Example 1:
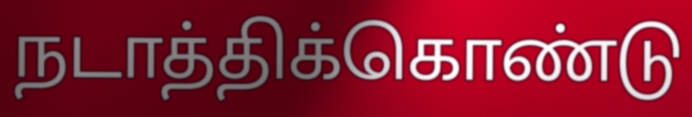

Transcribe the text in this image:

நடாத்திக்கொண்டு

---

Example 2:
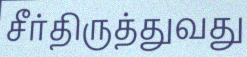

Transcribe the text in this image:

சீர்திருத்துவது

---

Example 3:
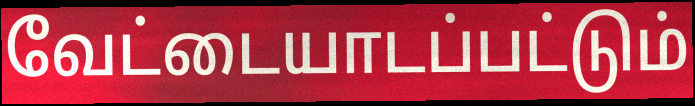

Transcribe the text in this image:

வேட்டையாடப்பட்டும்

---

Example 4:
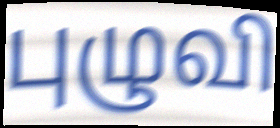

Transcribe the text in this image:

புழுவி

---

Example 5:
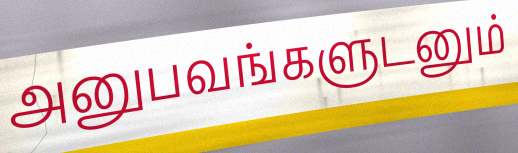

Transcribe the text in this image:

அனுபவங்களுடனும்